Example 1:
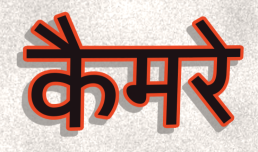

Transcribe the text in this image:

कैमरे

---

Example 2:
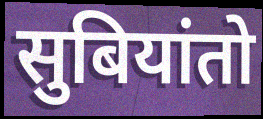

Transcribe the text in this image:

सुबियांतो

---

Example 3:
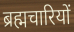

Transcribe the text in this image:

ब्रह्मचारियों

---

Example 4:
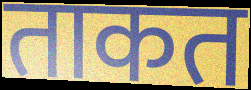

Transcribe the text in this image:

ताकत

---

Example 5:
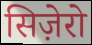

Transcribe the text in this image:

सिज़ेरो